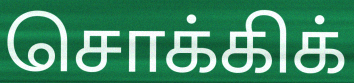
சொக்கிக்